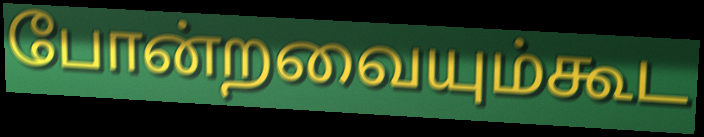
போன்றவையும்கூட